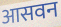
आसवन